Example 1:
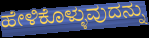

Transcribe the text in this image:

ಹೇಳಿಕೊಳ್ಳುವುದನ್ನು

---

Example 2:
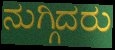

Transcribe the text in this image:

ನುಗ್ಗಿದರು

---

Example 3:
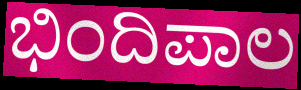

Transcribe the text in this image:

ಭಿಂದಿಪಾಲ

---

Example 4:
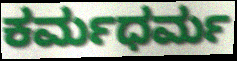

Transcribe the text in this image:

ಕರ್ಮಧರ್ಮ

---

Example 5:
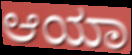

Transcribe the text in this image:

ಆಯಾ